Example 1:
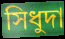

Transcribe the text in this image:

সিধুদা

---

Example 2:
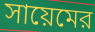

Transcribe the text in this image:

সায়েমের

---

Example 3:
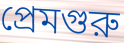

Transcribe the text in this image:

প্রেমগুরু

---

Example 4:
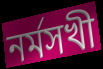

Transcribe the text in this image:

নর্মসখী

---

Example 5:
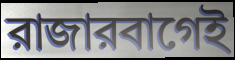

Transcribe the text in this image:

রাজারবাগেই